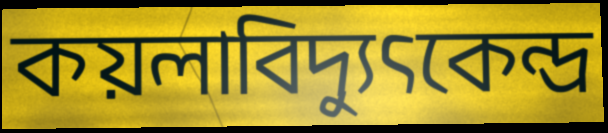
কয়লাবিদ্যুৎকেন্দ্র